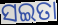
ସଇତା